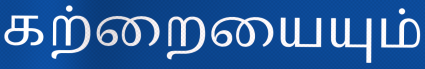
கற்றையையும்